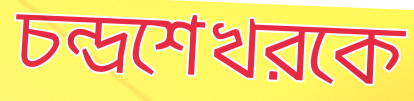
চন্দ্রশেখরকে